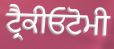
ਟ੍ਰੈਕੀਓਟੋਮੀ